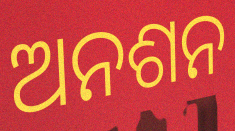
ଅନଶନ